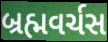
બ્રહ્મવર્ચસ